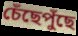
চেঁছেপুঁছে